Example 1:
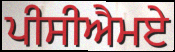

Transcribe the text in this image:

ਪੀਸੀਐਮਏ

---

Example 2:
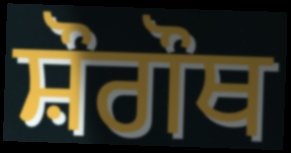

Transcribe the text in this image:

ਸ਼ੌਗੌਥ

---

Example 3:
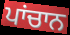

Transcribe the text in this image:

ਪਾਂਚਾਨ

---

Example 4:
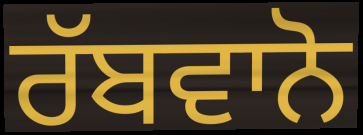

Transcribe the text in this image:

ਰੱਬਵਾਨੋ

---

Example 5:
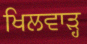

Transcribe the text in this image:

ਖਿਲਵਾੜ੍ਹ